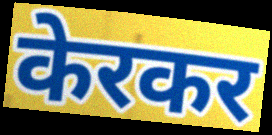
केरकर